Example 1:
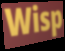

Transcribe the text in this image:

Wisp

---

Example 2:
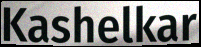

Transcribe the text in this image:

Kashelkar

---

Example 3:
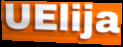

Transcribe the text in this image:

UElija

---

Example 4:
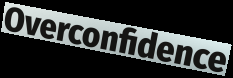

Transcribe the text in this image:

Overconfidence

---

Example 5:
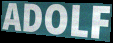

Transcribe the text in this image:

ADOLF